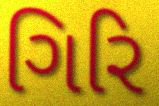
ગિરિ